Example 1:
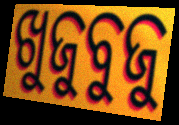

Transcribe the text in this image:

ଖୁଜୁବୁଜୁ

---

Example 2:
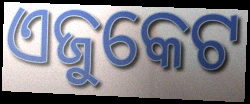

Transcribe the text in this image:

ଏଜୁକେଟ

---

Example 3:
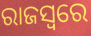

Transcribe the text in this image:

ରାଜସ୍ବରେ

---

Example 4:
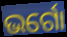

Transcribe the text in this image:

ଭର୍ଗୋ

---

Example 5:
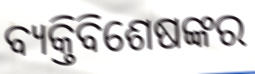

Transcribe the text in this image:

ବ୍ୟକ୍ତିବିଶେଷଙ୍କର